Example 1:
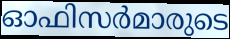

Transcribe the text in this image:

ഓഫിസർമാരുടെ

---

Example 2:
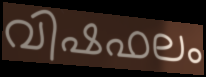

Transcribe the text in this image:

വിഷഫലം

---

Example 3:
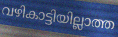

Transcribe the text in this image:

വഴികാട്ടിയില്ലാത്ത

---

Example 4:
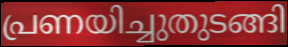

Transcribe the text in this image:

പ്രണയിച്ചുതുടങ്ങി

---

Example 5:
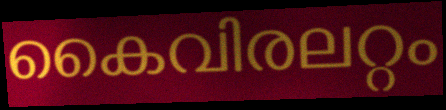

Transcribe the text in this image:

കൈവിരലറ്റം